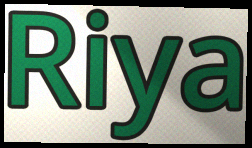
Riya